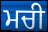
ਮਚੀ